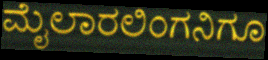
ಮೈಲಾರಲಿಂಗನಿಗೂ